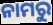
ନାମରୁ